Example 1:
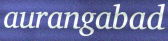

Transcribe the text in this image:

aurangabad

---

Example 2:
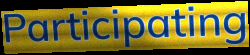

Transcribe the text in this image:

Participating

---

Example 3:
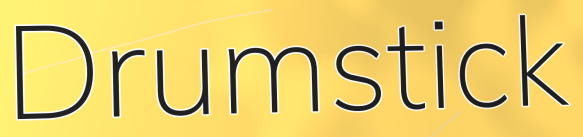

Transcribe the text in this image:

Drumstick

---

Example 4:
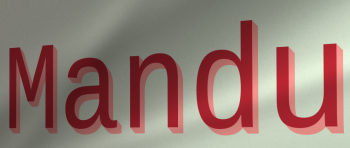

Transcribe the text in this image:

Mandu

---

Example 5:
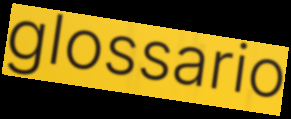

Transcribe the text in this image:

glossario